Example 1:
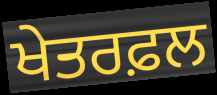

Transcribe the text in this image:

ਖੇਤਰਫ਼ਲ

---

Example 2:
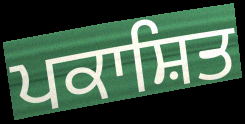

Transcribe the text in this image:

ਪਕਾਸ਼ਿਤ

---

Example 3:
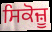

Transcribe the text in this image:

ਸਿਕੋਜ਼ੂ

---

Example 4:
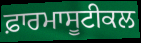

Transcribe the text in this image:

ਫ਼ਾਰਮਾਸੂਟੀਕਲ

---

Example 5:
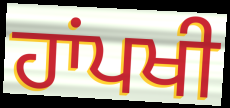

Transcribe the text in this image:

ਹਾਂਪਖੀ